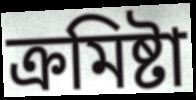
ক্ৰমিষ্টা